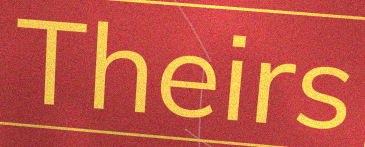
Theirs